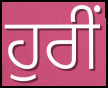
ਹੁਰੀਂ